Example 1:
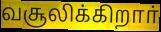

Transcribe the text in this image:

வசூலிக்கிறார்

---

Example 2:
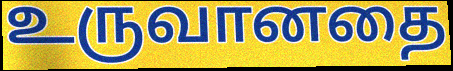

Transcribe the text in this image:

உருவானதை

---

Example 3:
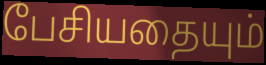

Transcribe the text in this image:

பேசியதையும்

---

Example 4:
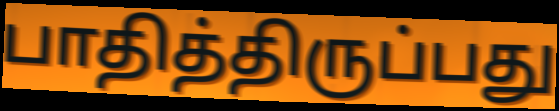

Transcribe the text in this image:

பாதித்திருப்பது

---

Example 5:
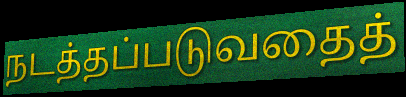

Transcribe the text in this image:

நடத்தப்படுவதைத்